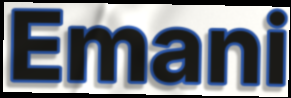
Emani